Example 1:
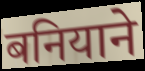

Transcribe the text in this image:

बनियाने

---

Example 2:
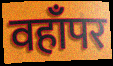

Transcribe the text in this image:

वहाँपर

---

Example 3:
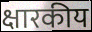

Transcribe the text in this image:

क्षारकीय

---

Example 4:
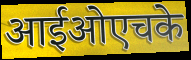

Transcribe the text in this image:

आईओएचके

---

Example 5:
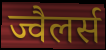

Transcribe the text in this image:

ज्वैलर्स